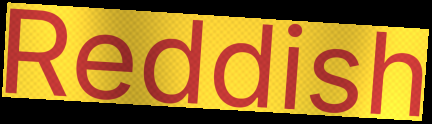
Reddish